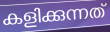
കളിക്കുന്നത്